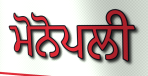
ਮੋਨੋਪਲੀ